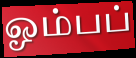
ஓம்பப்